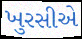
ખુરસીએ